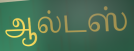
ஆல்டஸ்